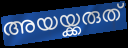
അയയ്ക്കരുത്